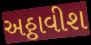
અઠ્ઠાવીશ